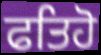
ਫਤਿਹੋ